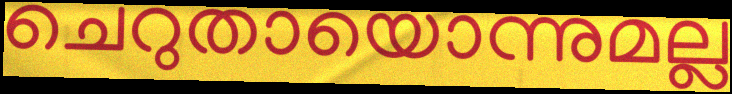
ചെറുതായൊന്നുമല്ല